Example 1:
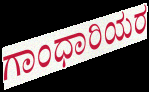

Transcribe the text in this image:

ಗಾಂಧಾರಿಯರ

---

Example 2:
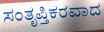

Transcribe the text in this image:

ಸಂತೃಪ್ತಿಕರವಾದ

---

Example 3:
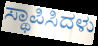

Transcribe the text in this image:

ಸ್ಥಾಪಿಸಿದಳು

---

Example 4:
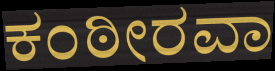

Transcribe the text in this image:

ಕಂಠೀರವಾ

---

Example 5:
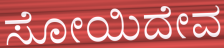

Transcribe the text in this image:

ಸೋಯಿದೇವ